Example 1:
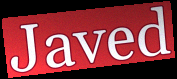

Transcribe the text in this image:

Javed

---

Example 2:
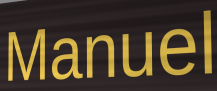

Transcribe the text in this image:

Manuel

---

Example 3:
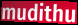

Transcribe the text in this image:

mudithu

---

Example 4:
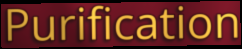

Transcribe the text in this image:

Purification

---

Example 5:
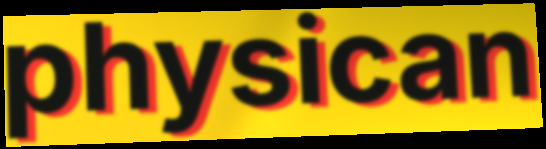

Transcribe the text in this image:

physican